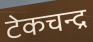
टेकचन्द्र